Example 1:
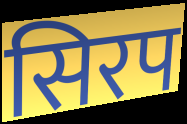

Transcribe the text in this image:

सिरप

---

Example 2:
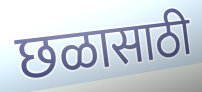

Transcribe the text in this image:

छळासाठी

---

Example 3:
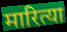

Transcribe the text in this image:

मारित्या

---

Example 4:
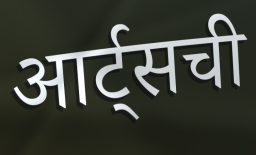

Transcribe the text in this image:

आर्ट्सची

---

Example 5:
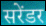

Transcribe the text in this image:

सरेंडर